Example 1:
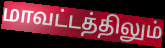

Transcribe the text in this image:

மாவட்டத்திலும்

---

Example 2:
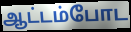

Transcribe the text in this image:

ஆட்டம்போட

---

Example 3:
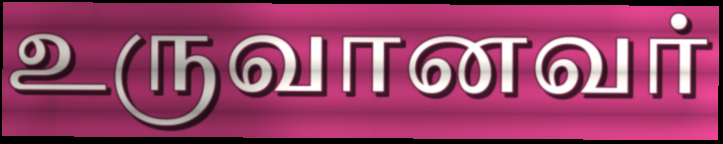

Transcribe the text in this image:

உருவானவர்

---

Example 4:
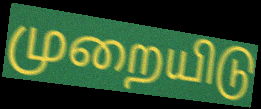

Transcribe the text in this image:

முறையிடு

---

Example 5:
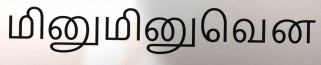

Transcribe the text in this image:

மினுமினுவென